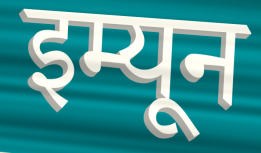
इम्यून